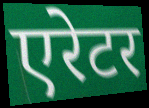
एरेटर